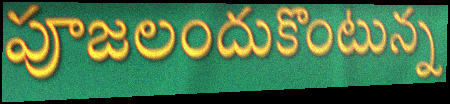
పూజలందుకొంటున్న